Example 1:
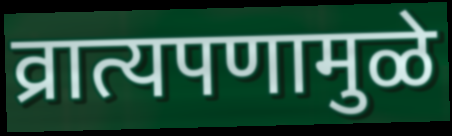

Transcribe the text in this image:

व्रात्यपणामुळे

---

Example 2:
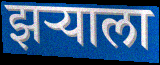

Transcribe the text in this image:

झर्‍याला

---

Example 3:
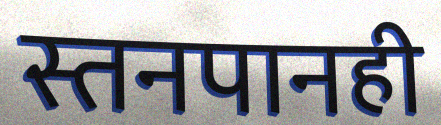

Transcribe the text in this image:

स्तनपानही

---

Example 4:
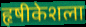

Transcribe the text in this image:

हृषीकेशला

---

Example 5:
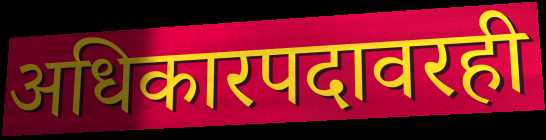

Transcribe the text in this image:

अधिकारपदावरही